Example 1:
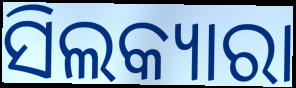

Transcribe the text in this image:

ସିଲକ୍ୟାରା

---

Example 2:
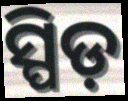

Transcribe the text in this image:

ସ୍ପିଡ଼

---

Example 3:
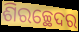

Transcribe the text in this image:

ଶିରଚ୍ଛେଦର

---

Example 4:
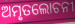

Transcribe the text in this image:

ଅମୃତଲୋଚନୀ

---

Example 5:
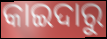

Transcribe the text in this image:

କାଇଦାରୁ